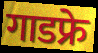
गाडफ्रे